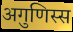
अगुणिस्स